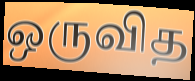
ஒருவித